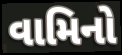
વામિનો